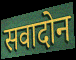
सवादोन